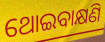
ଥୋଇବାକ୍ଷଣି